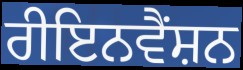
ਰੀਇਨਵੈਂਸ਼ਨ